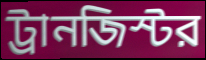
ট্রানজিস্টর